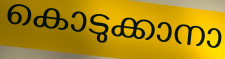
കൊടുക്കാനാ